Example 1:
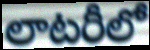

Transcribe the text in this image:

లాటరీలో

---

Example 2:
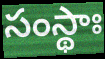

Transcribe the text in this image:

సంస్థాః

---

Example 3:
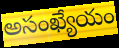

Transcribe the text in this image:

అసంఖ్యేయం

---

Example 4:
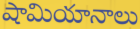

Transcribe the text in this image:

షామియానాలు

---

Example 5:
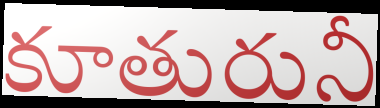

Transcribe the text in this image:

కూతురునీ